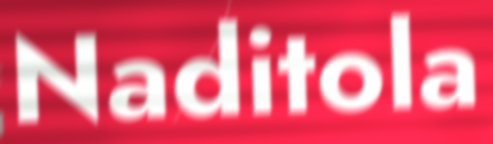
Naditola